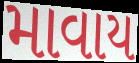
માવાય